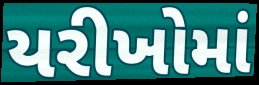
યરીખોમાં